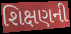
શિક્ષણની